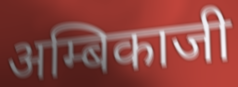
अम्बिकाजी